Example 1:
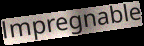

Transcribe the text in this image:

Impregnable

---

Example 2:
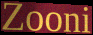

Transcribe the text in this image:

Zooni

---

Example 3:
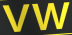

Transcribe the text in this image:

vw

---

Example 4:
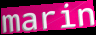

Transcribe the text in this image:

marin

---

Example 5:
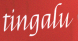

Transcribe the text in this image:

tingalu